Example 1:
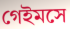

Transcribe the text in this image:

গেইমসে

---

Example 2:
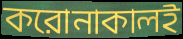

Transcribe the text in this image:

করোনাকালই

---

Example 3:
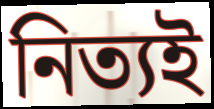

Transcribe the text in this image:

নিত্যই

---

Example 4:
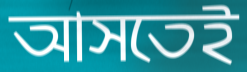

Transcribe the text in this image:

আসতেই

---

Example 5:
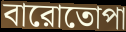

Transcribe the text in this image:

বারোতোপা